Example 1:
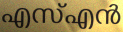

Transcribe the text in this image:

എസ്എൻ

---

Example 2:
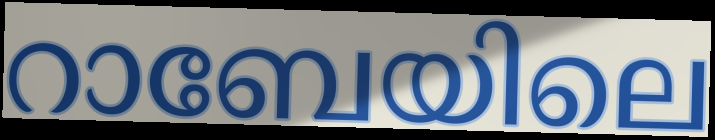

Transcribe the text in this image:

റാബേയിലെ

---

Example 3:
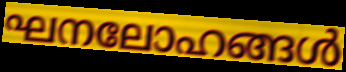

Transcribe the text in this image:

ഘനലോഹങ്ങൾ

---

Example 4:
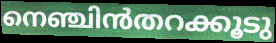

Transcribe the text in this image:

നെഞ്ചിൻതറക്കൂടു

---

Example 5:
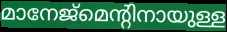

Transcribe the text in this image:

മാനേജ്മെന്റിനായുള്ള